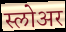
स्लोअर